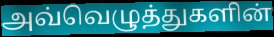
அவ்வெழுத்துகளின்